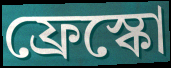
ফ্রেস্কো